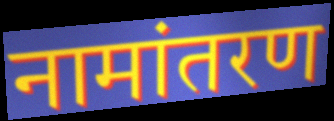
नामांतरण